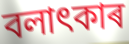
বলাৎকাৰ